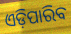
ଏଡ଼ିପାରିବ